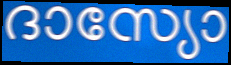
ദാസ്യോ